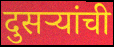
दुसऱ्यांची